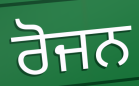
ਰੋਜਨ